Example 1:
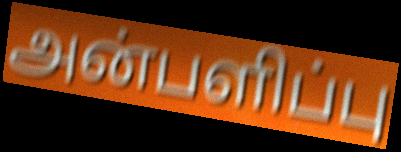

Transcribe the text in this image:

அன்பளிப்பு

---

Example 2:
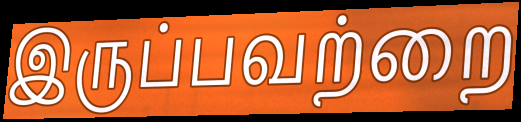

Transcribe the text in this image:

இருப்பவற்றை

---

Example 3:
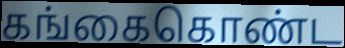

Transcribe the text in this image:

கங்கைகொண்ட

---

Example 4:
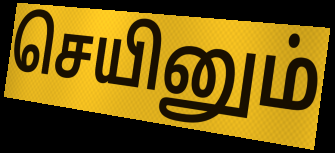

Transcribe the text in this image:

செயினும்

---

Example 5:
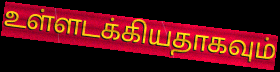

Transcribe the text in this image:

உள்ளடக்கியதாகவும்